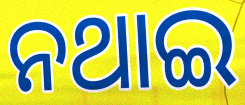
ନଥାଇ